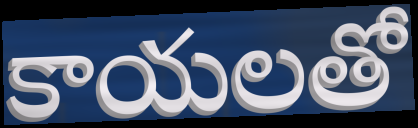
కాయలతో